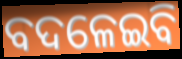
ବଦଳେଇବି